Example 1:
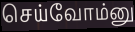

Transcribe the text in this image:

செய்வோம்னு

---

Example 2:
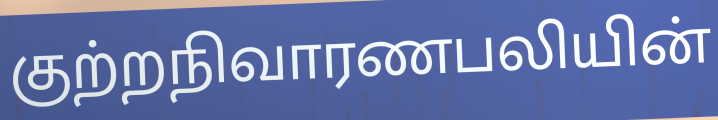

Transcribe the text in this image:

குற்றநிவாரணபலியின்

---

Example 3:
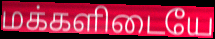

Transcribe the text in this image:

மக்களிடையே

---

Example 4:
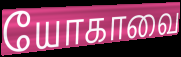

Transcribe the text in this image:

யோகாவை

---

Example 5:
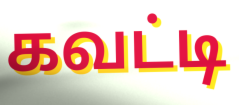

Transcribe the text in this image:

கவட்டி